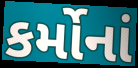
કર્મોનાં